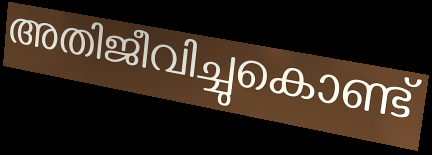
അതിജീവിച്ചുകൊണ്ട്